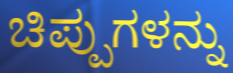
ಚಿಪ್ಪುಗಳನ್ನು